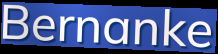
Bernanke